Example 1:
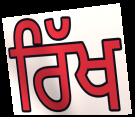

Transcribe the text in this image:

ਰਿੱਖ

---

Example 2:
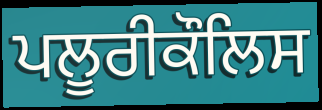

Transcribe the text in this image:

ਪਲੂਰੀਕੌਲਿਸ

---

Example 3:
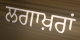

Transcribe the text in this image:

ਲਗਾਖ਼ਰਾਂ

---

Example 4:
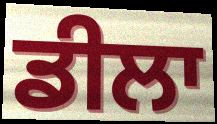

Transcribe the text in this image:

ਡੀਲਾ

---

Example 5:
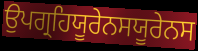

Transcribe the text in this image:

ਉਪਗ੍ਰਹਿਯੂਰੇਨਸਯੂਰੇਨਸ